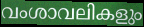
വംശാവലികളും